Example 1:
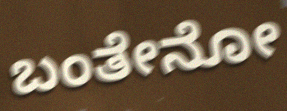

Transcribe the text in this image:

ಬಂತೇನೋ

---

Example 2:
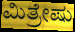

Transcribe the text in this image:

ಮಿತ್ರೇಷು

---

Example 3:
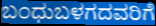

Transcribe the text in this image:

ಬಂಧುಬಳಗದವರಿಗೆ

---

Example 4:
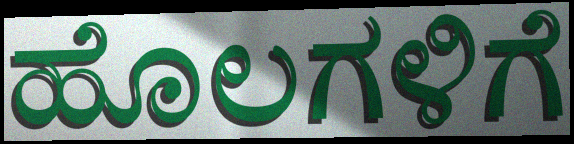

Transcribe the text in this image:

ಹೊಲಗಳಿಗೆ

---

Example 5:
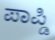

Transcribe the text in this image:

ಪಾಪ್ಡಿ